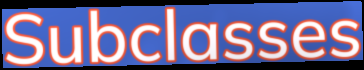
Subclasses